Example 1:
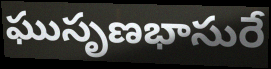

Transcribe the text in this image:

ఘుసృణభాసురే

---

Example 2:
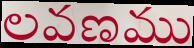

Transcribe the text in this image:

లవణము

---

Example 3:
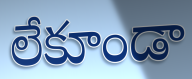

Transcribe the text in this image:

లేకూండా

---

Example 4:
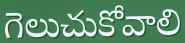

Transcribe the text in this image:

గెలుచుకోవాలి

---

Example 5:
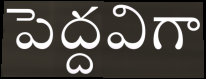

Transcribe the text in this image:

పెద్దవిగా